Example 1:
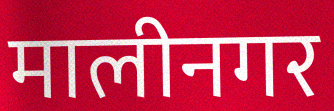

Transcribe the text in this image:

मालीनगर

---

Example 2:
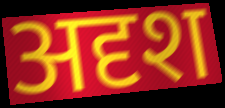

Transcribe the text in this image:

अदृश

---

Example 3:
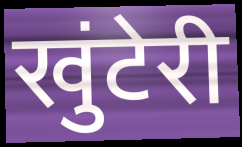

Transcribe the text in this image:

खुंटेरी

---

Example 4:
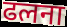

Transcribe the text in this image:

ढलना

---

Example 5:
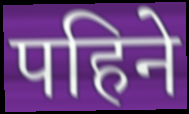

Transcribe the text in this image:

पहिने